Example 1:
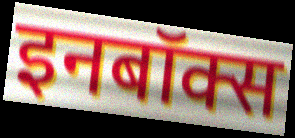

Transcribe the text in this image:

इनबॉक्स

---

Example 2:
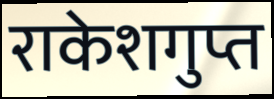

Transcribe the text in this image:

राकेशगुप्त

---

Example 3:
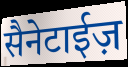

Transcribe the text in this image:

सैनेटाईज़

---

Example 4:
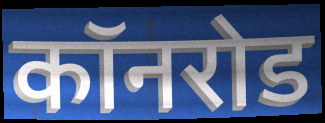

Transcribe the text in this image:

कॉनरोड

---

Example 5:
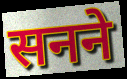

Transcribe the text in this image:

सनने